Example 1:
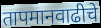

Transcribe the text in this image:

तापमानवाढीचे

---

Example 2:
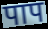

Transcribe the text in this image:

पाप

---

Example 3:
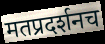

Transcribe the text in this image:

मतप्रदर्शनच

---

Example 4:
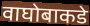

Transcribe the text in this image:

वाघोबाकडे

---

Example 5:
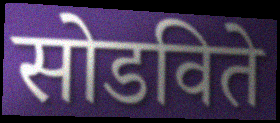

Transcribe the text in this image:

सोडविते